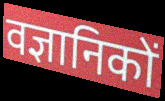
वज्ञानिकों